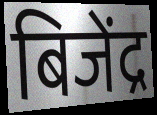
बिजेंद्र